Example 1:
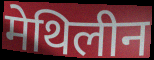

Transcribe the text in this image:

मेथिलीन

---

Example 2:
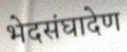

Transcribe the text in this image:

भेदसंघादेण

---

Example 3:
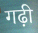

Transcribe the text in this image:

गढ़ी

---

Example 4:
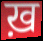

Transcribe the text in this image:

ख़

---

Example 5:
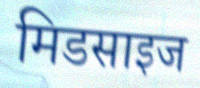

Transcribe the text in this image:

मिडसाइज